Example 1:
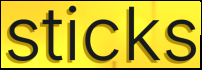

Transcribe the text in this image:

sticks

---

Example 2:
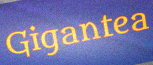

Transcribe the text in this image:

Gigantea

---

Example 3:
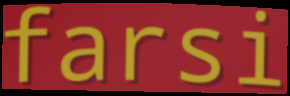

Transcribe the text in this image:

farsi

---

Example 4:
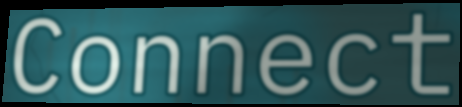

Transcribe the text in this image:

Connect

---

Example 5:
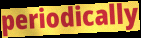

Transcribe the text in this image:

periodically